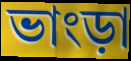
ভাংড়া